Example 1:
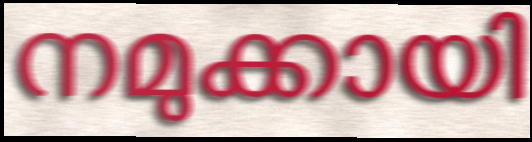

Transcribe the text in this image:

നമുക്കായി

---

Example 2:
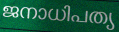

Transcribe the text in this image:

ജനാധിപത്യ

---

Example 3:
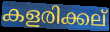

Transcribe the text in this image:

കളരിക്കല്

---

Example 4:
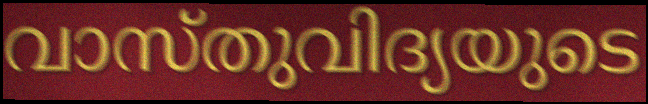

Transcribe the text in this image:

വാസ്തുവിദ്യയുടെ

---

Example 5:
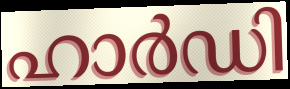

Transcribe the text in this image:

ഹാർഡി